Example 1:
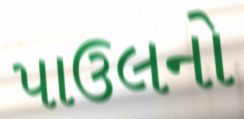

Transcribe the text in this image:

પાઉલનો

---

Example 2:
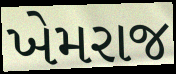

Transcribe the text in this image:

ખેમરાજ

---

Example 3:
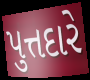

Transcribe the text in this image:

પુત્તદારે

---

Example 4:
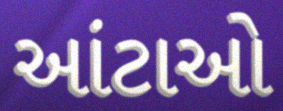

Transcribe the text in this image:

આંટાઓ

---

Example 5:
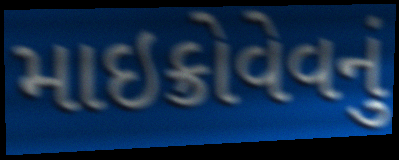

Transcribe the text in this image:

માઇક્રોવેવનું